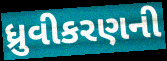
ધ્રુવીકરણની